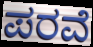
ಪರವೆ